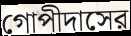
গোপীদাসের